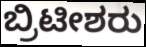
ಬ್ರಿಟೀಶರು